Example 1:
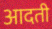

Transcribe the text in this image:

आदती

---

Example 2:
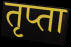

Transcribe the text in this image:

तृप्ता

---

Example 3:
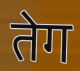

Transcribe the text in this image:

तेग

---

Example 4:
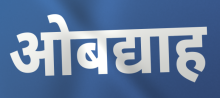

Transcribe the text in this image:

ओबद्याह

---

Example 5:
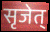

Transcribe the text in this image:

सृजेत्